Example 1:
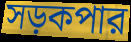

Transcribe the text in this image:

সড়কপার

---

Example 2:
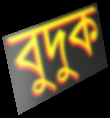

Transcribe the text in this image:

বুদুক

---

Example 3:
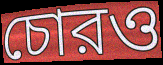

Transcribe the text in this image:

চোরও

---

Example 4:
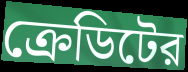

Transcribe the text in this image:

ক্রেডিটের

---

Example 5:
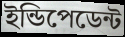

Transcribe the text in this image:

ইন্ডিপেডেন্ট